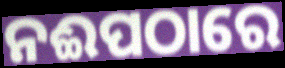
ନଈପଠାରେ